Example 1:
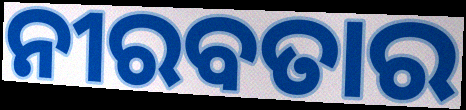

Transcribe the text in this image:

ନୀରବତାର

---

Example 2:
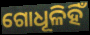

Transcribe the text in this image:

ଗୋଧୂଳିହିଁ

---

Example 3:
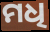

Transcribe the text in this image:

ମଧି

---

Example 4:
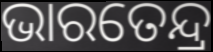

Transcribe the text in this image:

ଭାରତେନ୍ଦ୍ର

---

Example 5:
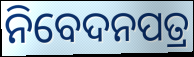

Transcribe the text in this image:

ନିବେଦନପତ୍ର